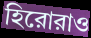
হিরোরাও